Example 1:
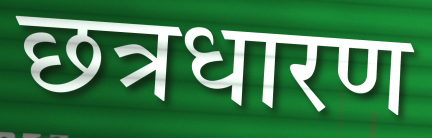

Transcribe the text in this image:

छत्रधारण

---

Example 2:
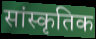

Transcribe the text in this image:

सांस्कृतिक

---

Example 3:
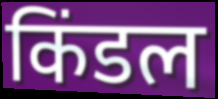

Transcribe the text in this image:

किंडल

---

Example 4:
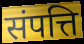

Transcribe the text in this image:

संपत्ति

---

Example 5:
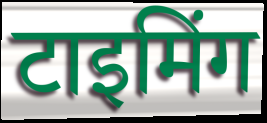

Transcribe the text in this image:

टाइमिंग